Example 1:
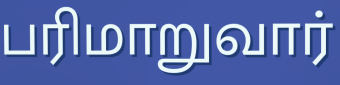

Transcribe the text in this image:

பரிமாறுவார்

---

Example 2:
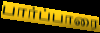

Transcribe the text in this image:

பார்ப்பாரை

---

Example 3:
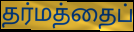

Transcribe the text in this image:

தர்மத்தைப்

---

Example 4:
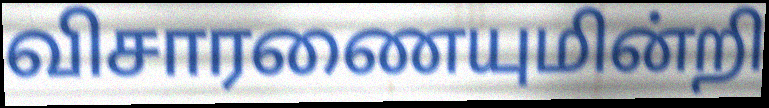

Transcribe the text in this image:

விசாரணையுமின்றி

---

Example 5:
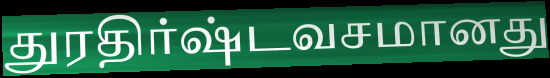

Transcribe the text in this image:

துரதிர்ஷ்டவசமானது